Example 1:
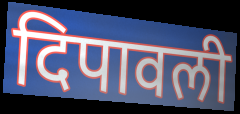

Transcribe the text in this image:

दिपावली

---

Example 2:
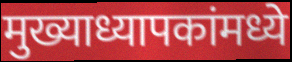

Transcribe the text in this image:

मुख्याध्यापकांमध्ये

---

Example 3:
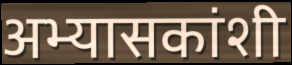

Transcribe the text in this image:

अभ्यासकांशी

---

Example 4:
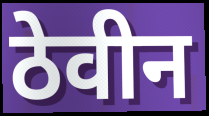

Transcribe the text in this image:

ठेवीन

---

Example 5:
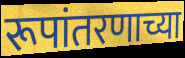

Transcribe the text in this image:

रूपांतरणाच्या